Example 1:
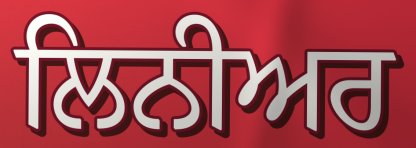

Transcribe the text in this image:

ਲਿਨੀਅਰ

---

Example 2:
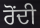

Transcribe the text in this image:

ਰੋਂਦੀ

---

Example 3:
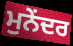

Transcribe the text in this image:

ਮੁਨੇਂਦਰ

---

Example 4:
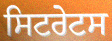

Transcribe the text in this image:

ਸਿਟਰੇਟਸ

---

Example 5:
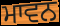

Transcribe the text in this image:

ਮਾਵਨ